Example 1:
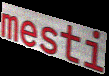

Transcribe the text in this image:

mesti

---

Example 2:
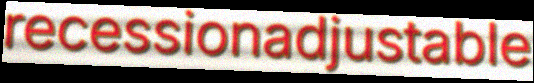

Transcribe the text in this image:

recessionadjustable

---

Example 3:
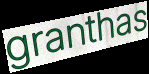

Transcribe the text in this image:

granthas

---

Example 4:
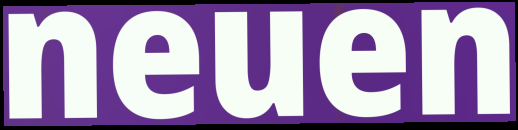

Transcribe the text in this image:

neuen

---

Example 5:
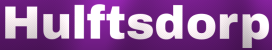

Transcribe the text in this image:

Hulftsdorp